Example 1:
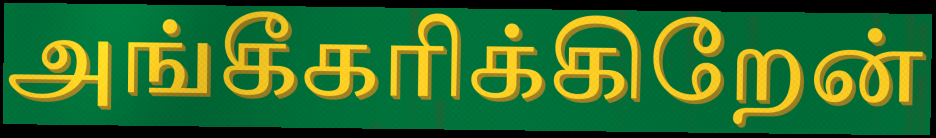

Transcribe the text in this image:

அங்கீகரிக்கிறேன்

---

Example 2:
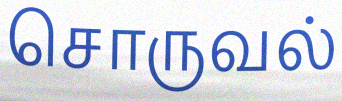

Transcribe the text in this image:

சொருவல்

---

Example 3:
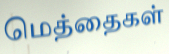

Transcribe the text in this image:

மெத்தைகள்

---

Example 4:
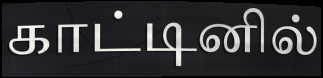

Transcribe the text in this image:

காட்டினில்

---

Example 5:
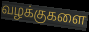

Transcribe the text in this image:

வழக்குகளை